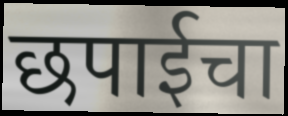
छपाईचा